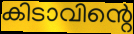
കിടാവിന്റെ